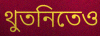
থুতনিতেও